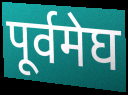
पूर्वमेघ